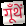
गूँथें